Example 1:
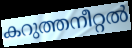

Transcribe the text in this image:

കറുത്തനീറ്റൽ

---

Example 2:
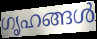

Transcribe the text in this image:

ഗൃഹങ്ങൾ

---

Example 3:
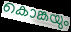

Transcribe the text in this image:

കൊങ്കയും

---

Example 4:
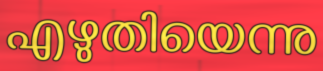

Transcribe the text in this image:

എഴുതിയെന്നു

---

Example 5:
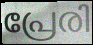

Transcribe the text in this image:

പ്രേരി